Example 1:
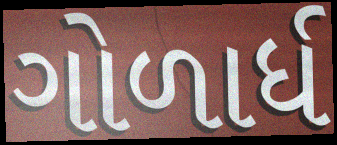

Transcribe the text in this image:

ગોળાર્ધ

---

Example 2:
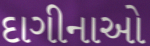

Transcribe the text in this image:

દાગીનાઓ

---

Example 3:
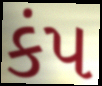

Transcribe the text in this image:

કંપ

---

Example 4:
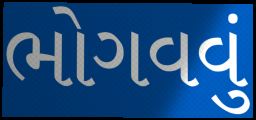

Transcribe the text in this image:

ભોગવવું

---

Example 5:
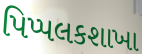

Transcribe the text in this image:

પિપ્પલકશાખા